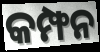
କମ୍ଫନ